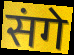
संगे